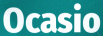
Ocasio